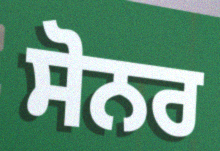
ਸੋਨਰ